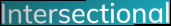
Intersectional